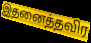
இதனைத்தவிர